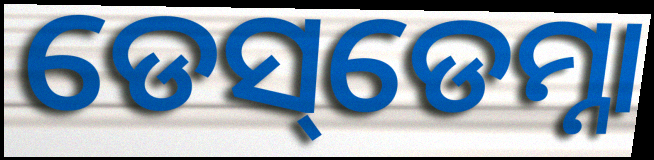
ଡେସ୍‌ଡେମ୍ନା